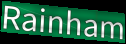
Rainham